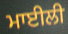
ਮਾਈਲੀ